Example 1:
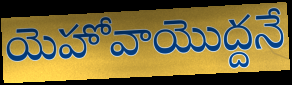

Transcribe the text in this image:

యెహోవాయొద్దనే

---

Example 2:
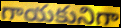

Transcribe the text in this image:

గాయకునిగా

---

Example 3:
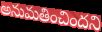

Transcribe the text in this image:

అనుమతించిందని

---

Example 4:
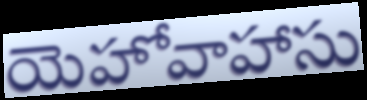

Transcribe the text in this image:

యెహోవాహాసు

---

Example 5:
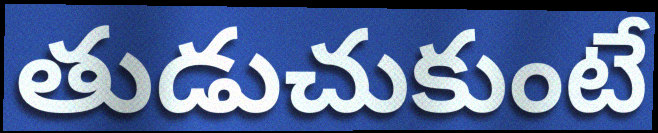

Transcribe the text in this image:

తుడుచుకుంటే